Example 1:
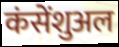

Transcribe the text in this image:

कंसेंशुअल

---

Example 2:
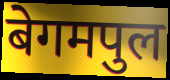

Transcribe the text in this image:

बेगमपुल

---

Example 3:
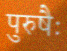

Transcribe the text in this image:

पुरुषैः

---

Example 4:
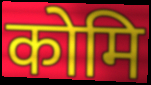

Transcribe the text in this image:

कोमि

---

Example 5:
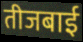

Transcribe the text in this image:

तीजबाई